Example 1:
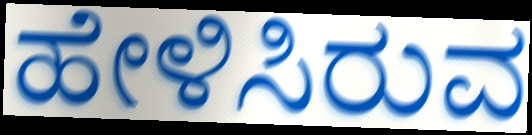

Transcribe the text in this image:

ಹೇಳಿಸಿರುವ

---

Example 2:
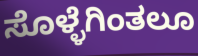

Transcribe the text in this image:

ಸೊಳ್ಳೆಗಿಂತಲೂ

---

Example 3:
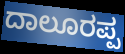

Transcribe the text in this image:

ದಾಲೂರಪ್ಪ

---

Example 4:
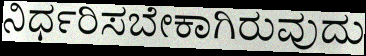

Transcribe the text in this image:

ನಿರ್ಧರಿಸಬೇಕಾಗಿರುವುದು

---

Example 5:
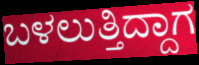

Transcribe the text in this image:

ಬಳಲುತ್ತಿದ್ದಾಗ